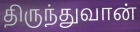
திருந்துவான்